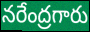
నరేంద్రగారు